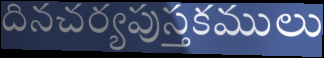
దినచర్యపుస్తకములు